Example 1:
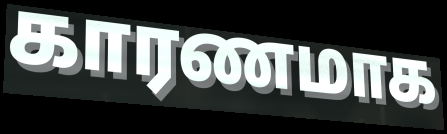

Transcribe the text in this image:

காரணமாக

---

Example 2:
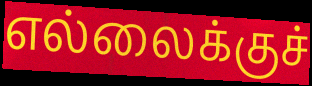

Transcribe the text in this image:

எல்லைக்குச்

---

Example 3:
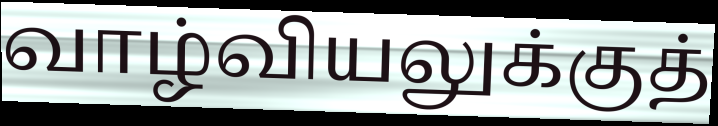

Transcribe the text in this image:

வாழ்வியலுக்குத்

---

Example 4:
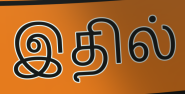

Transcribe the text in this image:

இதில்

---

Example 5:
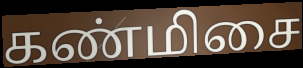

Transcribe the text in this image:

கண்மிசை